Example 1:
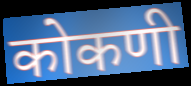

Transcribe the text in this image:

कोकणी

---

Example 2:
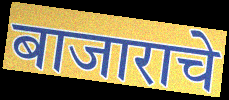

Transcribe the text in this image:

बाजाराचे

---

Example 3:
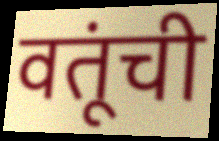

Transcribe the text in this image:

वतूंची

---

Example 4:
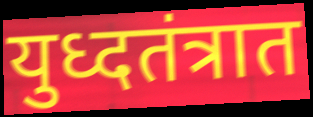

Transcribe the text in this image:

युध्दतंत्रात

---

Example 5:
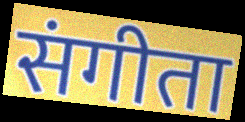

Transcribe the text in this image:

संगीता